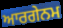
ਆਰਗੇਨਮ